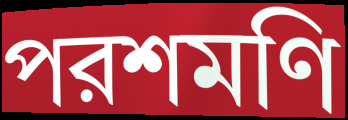
পরশমণি